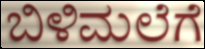
ಬಿಳಿಮಲೆಗೆ